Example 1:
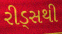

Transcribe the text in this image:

રીડ્સથી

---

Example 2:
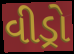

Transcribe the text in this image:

વીડ્રો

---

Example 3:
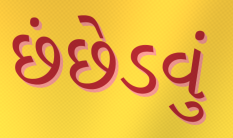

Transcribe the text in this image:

છંછેડવું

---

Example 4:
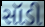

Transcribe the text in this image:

સૉડી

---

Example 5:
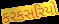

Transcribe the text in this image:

કરકસરિયો